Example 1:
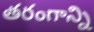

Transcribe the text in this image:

తరంగాన్ని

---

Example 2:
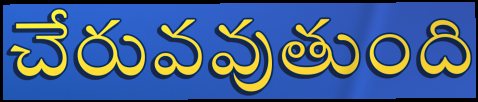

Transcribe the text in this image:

చేరువవుతుంది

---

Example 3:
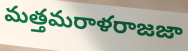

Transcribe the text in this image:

మత్తమరాళరాజజా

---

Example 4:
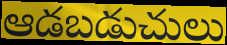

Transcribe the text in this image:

ఆడబడుచులు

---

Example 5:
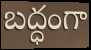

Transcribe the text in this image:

బద్ధంగా